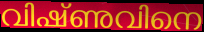
വിഷ്‌ണുവിനെ